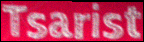
Tsarist